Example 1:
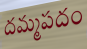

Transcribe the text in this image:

దమ్మపదం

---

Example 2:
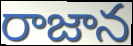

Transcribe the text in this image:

రాజాన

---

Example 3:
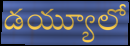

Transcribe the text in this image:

డయ్యూలో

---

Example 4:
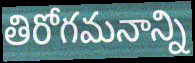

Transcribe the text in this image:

తిరోగమనాన్ని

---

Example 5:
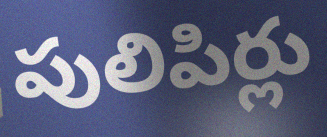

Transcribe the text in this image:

పులిపిర్లు